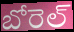
బోరెల్